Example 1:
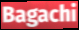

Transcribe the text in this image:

Bagachi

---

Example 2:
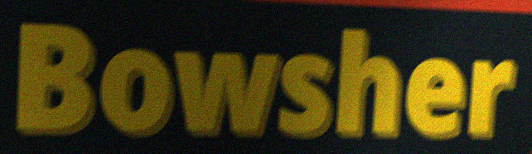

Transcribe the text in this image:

Bowsher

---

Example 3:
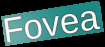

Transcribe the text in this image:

Fovea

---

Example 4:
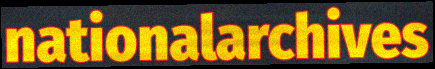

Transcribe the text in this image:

nationalarchives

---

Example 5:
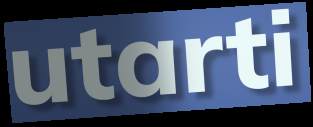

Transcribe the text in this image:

utarti